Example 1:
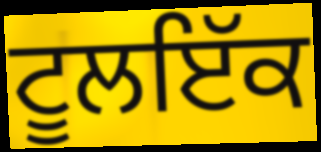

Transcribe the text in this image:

ਟੂਲਇੱਕ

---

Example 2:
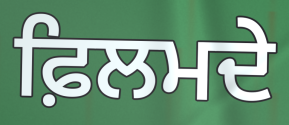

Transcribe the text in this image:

ਫ਼ਿਲਮਦੇ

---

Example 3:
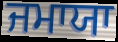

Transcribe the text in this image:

ਜਮਾਯਾ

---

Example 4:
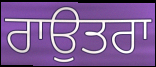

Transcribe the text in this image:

ਰਾਉਤਰਾ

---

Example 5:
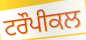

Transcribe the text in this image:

ਟਰੌਪੀਕਲ